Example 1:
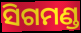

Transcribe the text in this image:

ସିଗମଣ୍ଡ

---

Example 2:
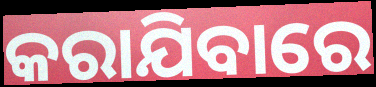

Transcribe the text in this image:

କରାଯିବାରେ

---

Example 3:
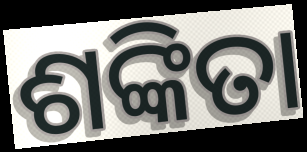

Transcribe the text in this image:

ଶଙ୍କିତା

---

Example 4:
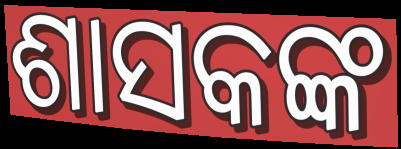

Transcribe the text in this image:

ଶାସକଙ୍କ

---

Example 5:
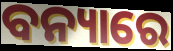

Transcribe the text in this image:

ବନ୍ୟାରେ